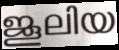
ജൂലിയ